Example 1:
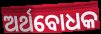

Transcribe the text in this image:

ଅର୍ଥବୋଧକ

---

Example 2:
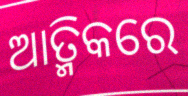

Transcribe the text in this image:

ଆତ୍ମିକରେ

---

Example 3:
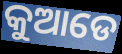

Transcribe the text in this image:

କୁଆଡେ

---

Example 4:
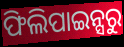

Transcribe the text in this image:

ଫିଲିପାଇନ୍ସରୁ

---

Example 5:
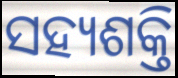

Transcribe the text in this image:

ସହ୍ୟଶକ୍ତି